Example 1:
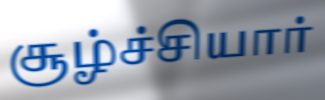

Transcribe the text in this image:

சூழ்ச்சியார்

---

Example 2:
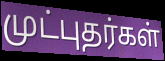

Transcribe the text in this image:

முட்புதர்கள்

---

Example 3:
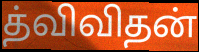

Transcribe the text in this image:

த்விவிதன்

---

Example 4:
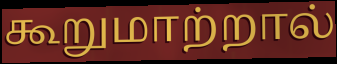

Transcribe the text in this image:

கூறுமாற்றால்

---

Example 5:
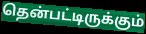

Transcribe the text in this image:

தென்பட்டிருக்கும்